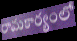
రామకార్యంలో